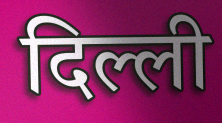
दिल्‍ली